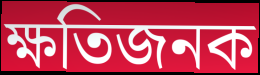
ক্ষতিজনক